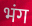
भंग